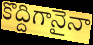
కొద్దిగానైనా